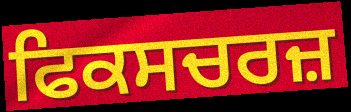
ਫਿਕਸਚਰਜ਼